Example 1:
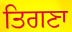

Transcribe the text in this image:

ਤਿਗਣਾ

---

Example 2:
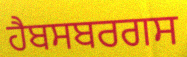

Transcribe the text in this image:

ਹੈਬਸਬਰਗਸ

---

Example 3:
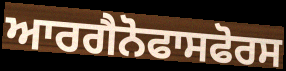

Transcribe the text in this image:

ਆਰਗੈਨੋਫਾਸਫੋਰਸ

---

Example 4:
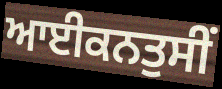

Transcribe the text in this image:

ਆਈਕਨਤੁਸੀਂ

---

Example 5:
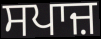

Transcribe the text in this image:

ਸਪਾਜ਼